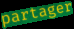
partager